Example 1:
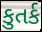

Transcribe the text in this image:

કુતર્ક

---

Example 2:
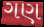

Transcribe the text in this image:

ગણ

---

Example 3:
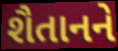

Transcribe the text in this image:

શૈતાનને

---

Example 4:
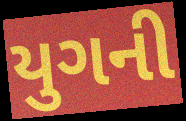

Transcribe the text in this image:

યુગની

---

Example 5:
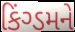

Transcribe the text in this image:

કિંગ્ડમને